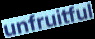
unfruitful